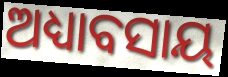
ଅଧ୍ୟାବସାୟ